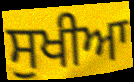
ਸੁਖੀਆ